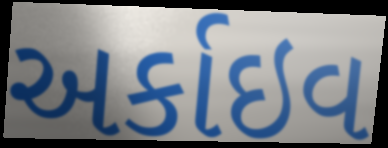
અર્કાઇવ